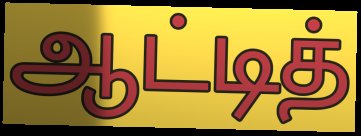
ஆட்டித்